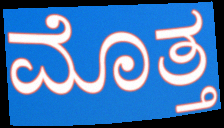
ಮೊತ್ತ